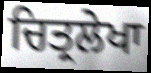
ਚਿਤ੍ਰਲੇਖਾ